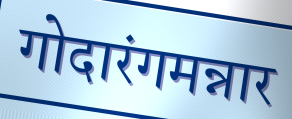
गोदारंगमन्नार